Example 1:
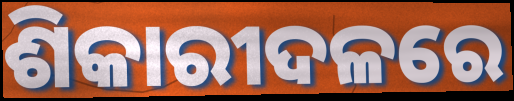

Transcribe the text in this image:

ଶିକାରୀଦଳରେ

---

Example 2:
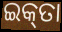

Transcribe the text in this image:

ଇକ୍‌ତା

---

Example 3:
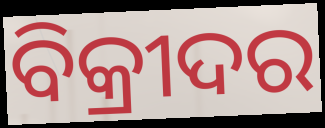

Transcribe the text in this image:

ବିକ୍ରୀଦର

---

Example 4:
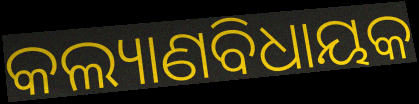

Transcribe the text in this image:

କଲ୍ୟାଣବିଧାୟକ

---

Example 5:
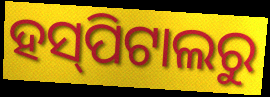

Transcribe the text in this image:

ହସ୍‌ପିଟାଲରୁ